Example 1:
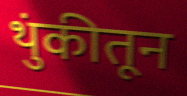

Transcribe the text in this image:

थुंकीतून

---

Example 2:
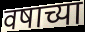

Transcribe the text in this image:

वषाच्या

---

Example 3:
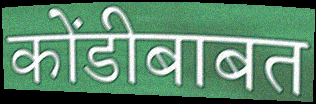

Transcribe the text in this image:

कोंडीबाबत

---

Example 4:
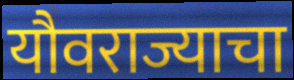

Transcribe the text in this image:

यौवराज्याचा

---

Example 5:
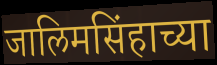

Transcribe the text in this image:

जालिमसिंहाच्या